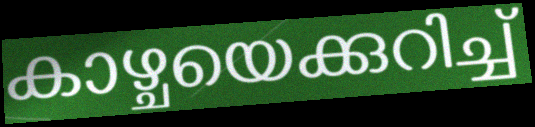
കാഴ്ചയെക്കുറിച്ച്